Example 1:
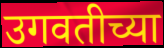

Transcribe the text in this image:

उगवतीच्या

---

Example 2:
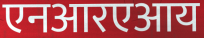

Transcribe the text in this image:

एनआरएआय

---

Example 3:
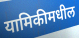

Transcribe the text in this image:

यामिकीमधील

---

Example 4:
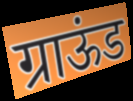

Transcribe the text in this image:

ग्राऊंड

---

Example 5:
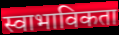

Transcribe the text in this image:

स्वाभाविकता